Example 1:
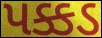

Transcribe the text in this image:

પક્કડ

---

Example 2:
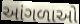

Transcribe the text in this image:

આંગળાઓ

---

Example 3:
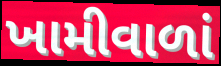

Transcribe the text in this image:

ખામીવાળાં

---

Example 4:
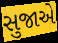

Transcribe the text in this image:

સુજાએ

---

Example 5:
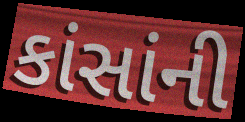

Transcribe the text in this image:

કાંસાંની